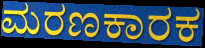
ಮರಣಕಾರಕ